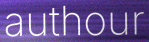
authour